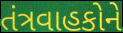
તંત્રવાહકોને